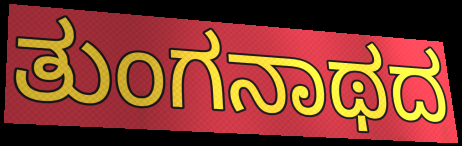
ತುಂಗನಾಥದ